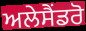
ਅਲੇਸੈਂਡਰੋ